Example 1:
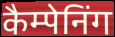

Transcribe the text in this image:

कैम्पेनिंग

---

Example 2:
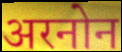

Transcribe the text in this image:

अरनोन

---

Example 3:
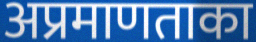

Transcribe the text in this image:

अप्रमाणताका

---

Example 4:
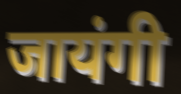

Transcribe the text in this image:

जायंगी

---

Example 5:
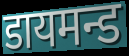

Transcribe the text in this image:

डायमन्ड